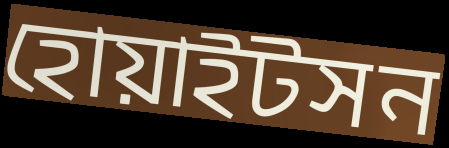
হোয়াইটসন